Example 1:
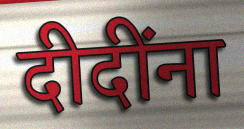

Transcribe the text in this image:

दीदींना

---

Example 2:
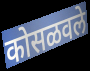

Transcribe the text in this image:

कोसळवले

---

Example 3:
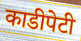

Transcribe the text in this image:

काडीपेटी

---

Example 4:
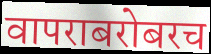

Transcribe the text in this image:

वापराबरोबरच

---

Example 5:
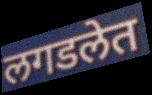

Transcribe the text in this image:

लगडलेत